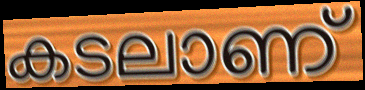
കടലാണ്